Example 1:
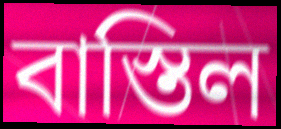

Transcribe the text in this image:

বাস্তিল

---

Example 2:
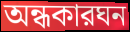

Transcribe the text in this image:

অন্ধকারঘন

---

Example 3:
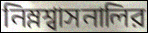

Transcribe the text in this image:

নিম্নশ্বাসনালির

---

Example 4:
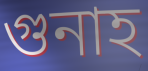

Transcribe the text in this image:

গুনাহ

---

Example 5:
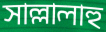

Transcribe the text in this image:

সাল্লালাহু